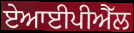
ਏਆਈਪੀਐੱਲ